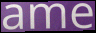
ame